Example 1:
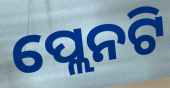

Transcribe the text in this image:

ପ୍ଲେନଟି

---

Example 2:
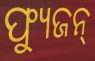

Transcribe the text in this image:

ଫ୍ୟୁଜନ୍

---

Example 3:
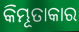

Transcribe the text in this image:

କିମ୍ଭୂତାକାର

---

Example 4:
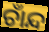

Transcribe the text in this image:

ଚାଁନ୍ଦ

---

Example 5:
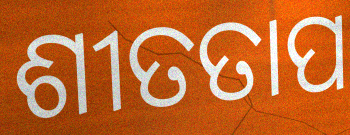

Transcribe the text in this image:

ଶୀତତାପ